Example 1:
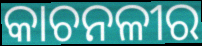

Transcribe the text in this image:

କାଚନଳୀର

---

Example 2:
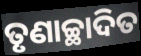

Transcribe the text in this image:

ତୃଣାଚ୍ଛାଦିତ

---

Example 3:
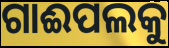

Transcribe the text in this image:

ଗାଈପଲକୁ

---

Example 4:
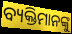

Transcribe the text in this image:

ବ୍ୟକ୍ତିମାନଙ୍କୁ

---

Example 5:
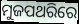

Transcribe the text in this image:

ମୁଜପଥରିରେ